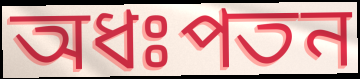
অধঃপতন